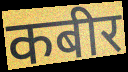
कबीर